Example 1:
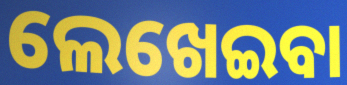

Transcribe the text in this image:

ଲେଖେଇବା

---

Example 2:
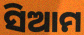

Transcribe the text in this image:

ସିଆମ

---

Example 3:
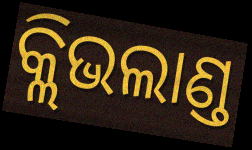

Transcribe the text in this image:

କ୍ଲିଭଲାଣ୍ଡ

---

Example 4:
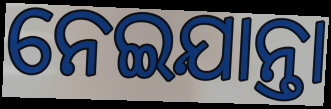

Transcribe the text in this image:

ନେଇଯାନ୍ତା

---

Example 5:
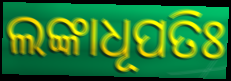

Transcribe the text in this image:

ଲଙ୍କାଧୂପତିଃ